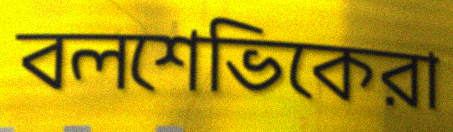
বলশেভিকেরা